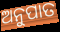
ଅନୁପାତ